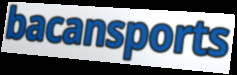
bacansports